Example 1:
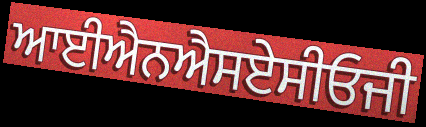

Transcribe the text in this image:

ਆਈਐਨਐਸਏਸੀਓਜੀ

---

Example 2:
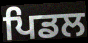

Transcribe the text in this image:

ਪਿਡਲ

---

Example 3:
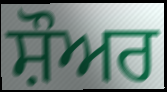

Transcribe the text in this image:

ਸ਼ੌਅਰ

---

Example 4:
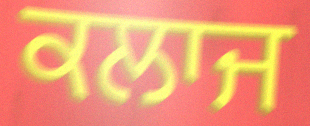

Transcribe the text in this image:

ਕਲਾਜ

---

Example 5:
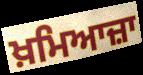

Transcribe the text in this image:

ਖ਼ਮਿਆਜ਼ਾ